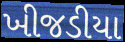
ખીજડીયા